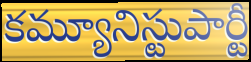
కమ్యూనిస్టుపార్టీ